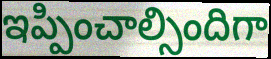
ఇప్పించాల్సిందిగా